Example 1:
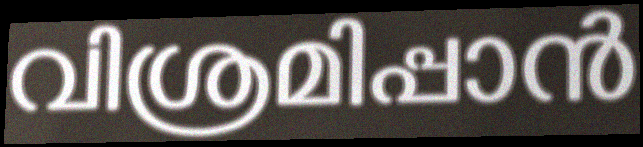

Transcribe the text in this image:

വിശ്രമിപ്പാൻ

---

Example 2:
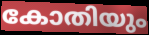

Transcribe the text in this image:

കോതിയും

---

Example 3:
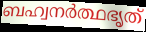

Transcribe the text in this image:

ബഹ്വനർത്ഥഭൃത്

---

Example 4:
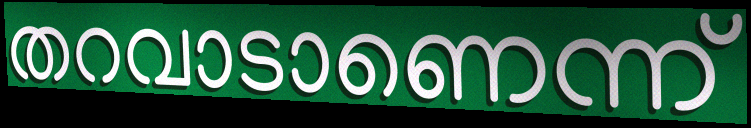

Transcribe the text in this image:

തറവാടാണെന്ന്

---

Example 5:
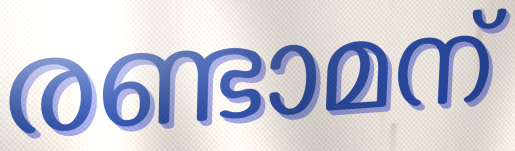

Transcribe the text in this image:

രണ്ടാമന്